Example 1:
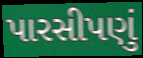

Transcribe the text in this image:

પારસીપણું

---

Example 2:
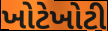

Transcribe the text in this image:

ખોટેખોટી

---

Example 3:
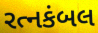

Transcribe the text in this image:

રત્નકંબલ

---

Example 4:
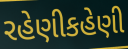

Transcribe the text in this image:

રહેણીકહેણી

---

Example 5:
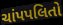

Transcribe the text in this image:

ચાંપપલિતો